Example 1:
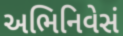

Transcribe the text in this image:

અભિનિવેસં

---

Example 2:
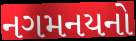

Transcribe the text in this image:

નગમનયનો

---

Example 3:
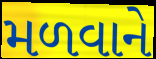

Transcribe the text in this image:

મળવાને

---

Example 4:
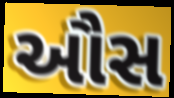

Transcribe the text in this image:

ઔસ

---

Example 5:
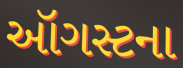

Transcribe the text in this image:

ઑગસ્ટના